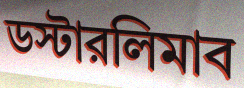
ডস্টারলিমাব